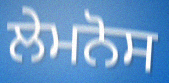
ਲੇਮਨੋਸ